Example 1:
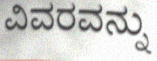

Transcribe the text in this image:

ವಿವರವನ್ನು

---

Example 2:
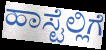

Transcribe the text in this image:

ಹಾಸ್ಟೆಲ್ಲಿಗೆ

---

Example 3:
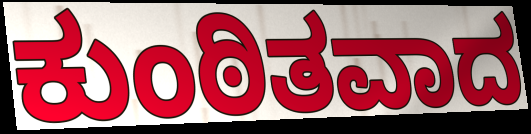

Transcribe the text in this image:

ಕುಂಠಿತವಾದ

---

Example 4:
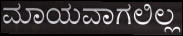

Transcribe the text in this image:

ಮಾಯವಾಗಲಿಲ್ಲ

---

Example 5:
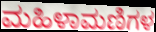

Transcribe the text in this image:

ಮಹಿಳಾಮಣಿಗಳ